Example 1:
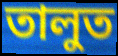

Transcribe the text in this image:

তালুত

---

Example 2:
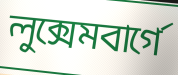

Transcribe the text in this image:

লুক্সেমবার্গে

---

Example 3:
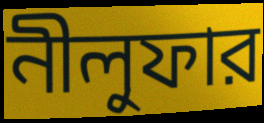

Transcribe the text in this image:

নীলুফার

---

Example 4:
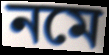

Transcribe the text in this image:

নমে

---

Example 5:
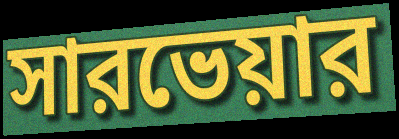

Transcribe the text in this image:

সারভেয়ার